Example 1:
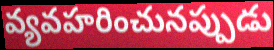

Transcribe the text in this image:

వ్యవహరించునప్పుడు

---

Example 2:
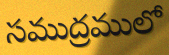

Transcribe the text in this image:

సముద్రములో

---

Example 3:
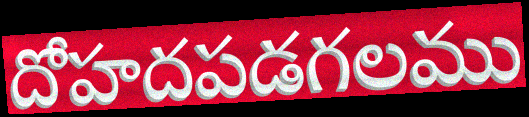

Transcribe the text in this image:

దోహదపడగలము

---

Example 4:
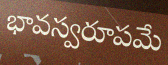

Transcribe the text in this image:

భావస్వరూపమే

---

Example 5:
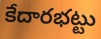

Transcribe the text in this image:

కేదారభట్టు